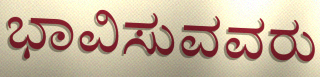
ಭಾವಿಸುವವರು